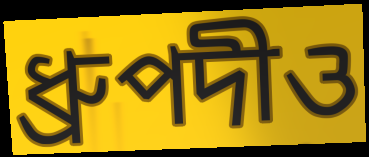
ধ্রুপদীও